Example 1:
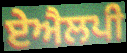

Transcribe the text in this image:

ਏਐਲਪੀ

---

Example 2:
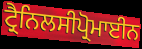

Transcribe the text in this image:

ਟ੍ਰੈਨਿਲਸੀਪ੍ਰੋਮਾਈਨ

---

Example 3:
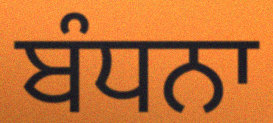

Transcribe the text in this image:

ਬੰਧਨਾ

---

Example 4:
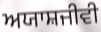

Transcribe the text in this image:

ਅਯਾਸ਼ਜੀਵੀ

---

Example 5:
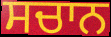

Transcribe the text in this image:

ਸਚਾਨ